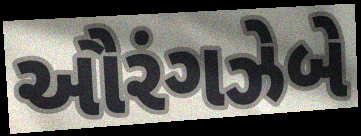
ઔરંગઝેબે